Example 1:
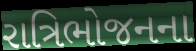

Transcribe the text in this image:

રાત્રિભોજનના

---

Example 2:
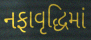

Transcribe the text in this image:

નફાવૃદ્ધિમાં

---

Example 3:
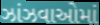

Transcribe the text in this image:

ઝાંઝવાઓમાં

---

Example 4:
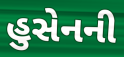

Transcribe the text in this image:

હુસેનની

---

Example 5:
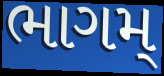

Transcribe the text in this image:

ભાગમ્